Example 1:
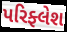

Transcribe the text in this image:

પરિફ્લેશ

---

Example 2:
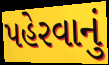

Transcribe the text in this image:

પહેરવાનું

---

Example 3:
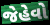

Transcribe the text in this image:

જેહેવો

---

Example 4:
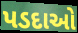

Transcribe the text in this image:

પડદાઓ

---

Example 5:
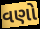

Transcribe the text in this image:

વણો